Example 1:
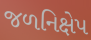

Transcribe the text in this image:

જળનિક્ષેપ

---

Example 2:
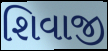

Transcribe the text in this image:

શિવાજી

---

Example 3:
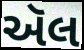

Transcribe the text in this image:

ઍલ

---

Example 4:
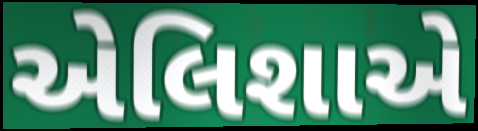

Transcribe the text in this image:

એલિશાએ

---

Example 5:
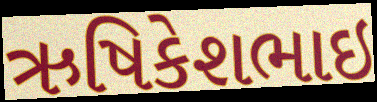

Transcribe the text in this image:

ઋષિકેશભાઇ